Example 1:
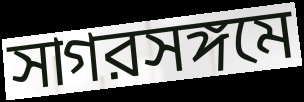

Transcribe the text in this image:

সাগরসঙ্গমে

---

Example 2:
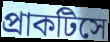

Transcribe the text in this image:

প্রাকটিসে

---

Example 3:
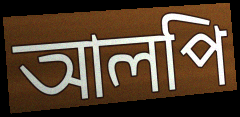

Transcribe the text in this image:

আলপি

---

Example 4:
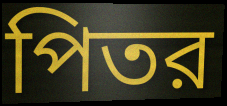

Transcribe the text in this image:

পিতর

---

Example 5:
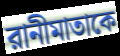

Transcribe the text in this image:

রানীমাতাকে